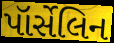
પૉર્સેલિન